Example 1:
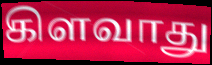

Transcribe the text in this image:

கிளவாது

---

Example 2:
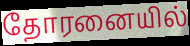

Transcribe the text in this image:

தோரனையில்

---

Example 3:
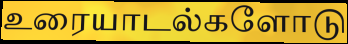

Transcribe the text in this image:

உரையாடல்களோடு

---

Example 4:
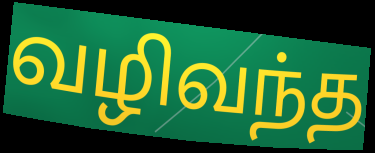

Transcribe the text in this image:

வழிவந்த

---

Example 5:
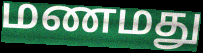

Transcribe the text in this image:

மணமது